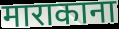
माराकाना